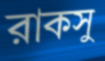
রাকসু